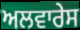
ਅਲਵਾਰੇਸ